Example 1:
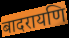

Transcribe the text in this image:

बादरायणि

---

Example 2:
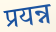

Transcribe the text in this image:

प्रयन्न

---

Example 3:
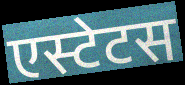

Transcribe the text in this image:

एस्टेटस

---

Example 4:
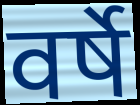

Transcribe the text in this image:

वर्षे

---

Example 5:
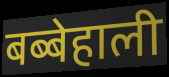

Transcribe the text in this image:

बब्बेहाली